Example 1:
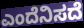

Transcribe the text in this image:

ಎಂದೆನಿಸದೆ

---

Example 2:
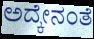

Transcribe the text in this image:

ಅದ್ಕೇನಂತೆ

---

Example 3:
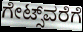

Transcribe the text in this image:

ಗೇಟ್ಸ್‌ವರೆಗೆ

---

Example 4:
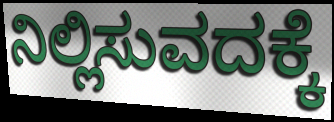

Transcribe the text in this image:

ನಿಲ್ಲಿಸುವದಕ್ಕೆ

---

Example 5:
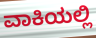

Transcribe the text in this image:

ವಾಕಿಯಲ್ಲಿ